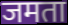
जमता